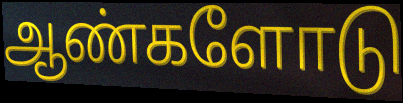
ஆண்களோடு